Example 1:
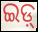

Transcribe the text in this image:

ଇଡ଼୍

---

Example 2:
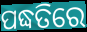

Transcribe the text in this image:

ପଦ୍ଧତିରେ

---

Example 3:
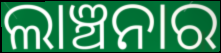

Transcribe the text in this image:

ଲାଞ୍ଚନାର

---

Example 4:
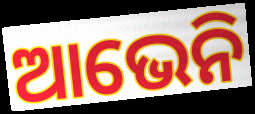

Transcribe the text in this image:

ଆଭେନି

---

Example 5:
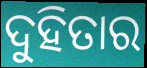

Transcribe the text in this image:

ଦୁହିତାର